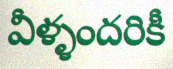
వీళ్ళందరికీ